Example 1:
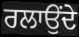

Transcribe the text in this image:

ਰਲਾਉਂਦੇ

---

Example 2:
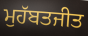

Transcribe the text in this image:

ਮੁਹੱਬਤਜੀਤ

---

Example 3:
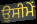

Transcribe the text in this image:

ਉਸੀਮੇਂ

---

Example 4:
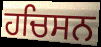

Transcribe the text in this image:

ਹਚਿਸਨ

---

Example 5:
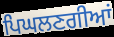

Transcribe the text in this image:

ਪਿਘਲਣਗੀਆਂ